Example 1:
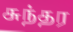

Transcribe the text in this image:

சுந்தர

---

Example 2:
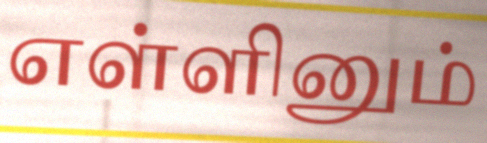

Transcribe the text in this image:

எள்ளினும்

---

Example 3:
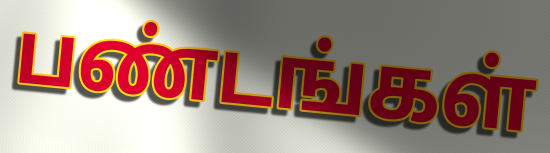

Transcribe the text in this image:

பண்டங்கள்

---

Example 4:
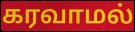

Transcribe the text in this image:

கரவாமல்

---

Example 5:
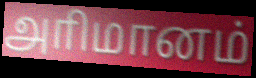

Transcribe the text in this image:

அரிமானம்